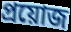
প্ৰয়োজ